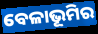
ବେଳାଭୂମିର